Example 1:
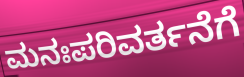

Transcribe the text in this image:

ಮನಃಪರಿವರ್ತನೆಗೆ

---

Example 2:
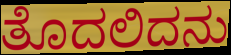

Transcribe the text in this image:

ತೊದಲಿದನು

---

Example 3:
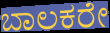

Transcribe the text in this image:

ಬಾಲಕರೇ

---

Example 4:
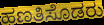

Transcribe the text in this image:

ಹಣತಿಸೊಡರು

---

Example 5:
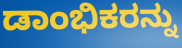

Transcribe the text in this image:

ಡಾಂಭಿಕರನ್ನು